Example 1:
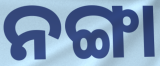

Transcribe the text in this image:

ନଙ୍ଗା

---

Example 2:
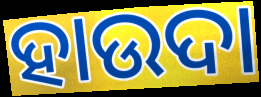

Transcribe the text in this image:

ହାଉଦା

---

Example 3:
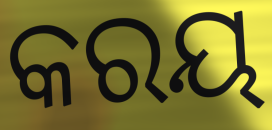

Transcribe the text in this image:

କରୟ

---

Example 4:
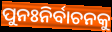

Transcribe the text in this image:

ପୁନଃନିର୍ବାଚନକୁ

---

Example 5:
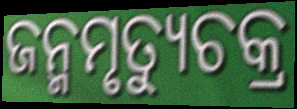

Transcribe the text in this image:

ଜନ୍ମମୃତ୍ୟୁଚକ୍ର